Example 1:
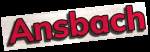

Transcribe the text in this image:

Ansbach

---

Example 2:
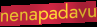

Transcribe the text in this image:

nenapadavu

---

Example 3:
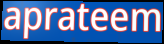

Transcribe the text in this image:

aprateem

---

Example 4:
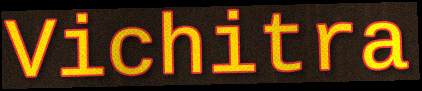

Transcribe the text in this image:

Vichitra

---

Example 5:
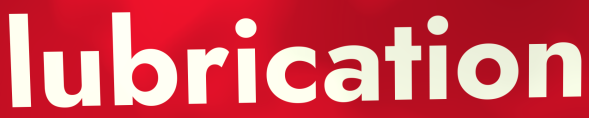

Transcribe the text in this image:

lubrication